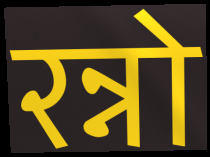
रन्नो